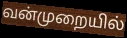
வன்முறையில்